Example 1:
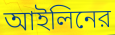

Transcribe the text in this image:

আইলিনের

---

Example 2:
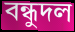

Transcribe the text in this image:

বন্ধুদল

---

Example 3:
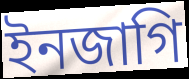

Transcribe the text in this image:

ইনজাগি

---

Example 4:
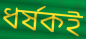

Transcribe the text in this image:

ধর্ষকই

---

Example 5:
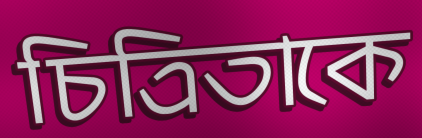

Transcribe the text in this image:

চিত্রিতাকে